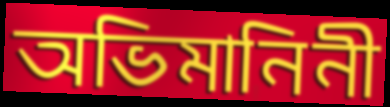
অভিমানিনী